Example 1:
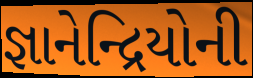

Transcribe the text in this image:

જ્ઞાનેન્દ્રિયોની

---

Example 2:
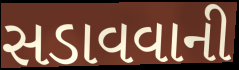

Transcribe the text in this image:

સડાવવાની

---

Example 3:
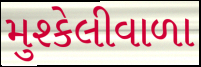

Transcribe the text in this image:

મુશ્કેલીવાળા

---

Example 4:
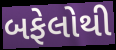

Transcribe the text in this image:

બફેલોથી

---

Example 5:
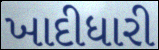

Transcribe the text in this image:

ખાદીધારી